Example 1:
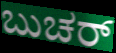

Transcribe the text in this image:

ಬುಚರ್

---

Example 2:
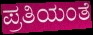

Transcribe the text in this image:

ಪ್ರತಿಯಂತೆ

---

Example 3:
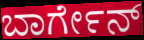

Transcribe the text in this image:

ಬಾರ್ಗೇನ್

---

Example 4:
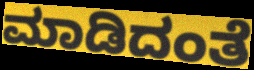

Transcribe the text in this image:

ಮಾಡಿದಂತೆ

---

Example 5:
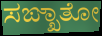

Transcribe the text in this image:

ಸಙ್ಖಾತೋ